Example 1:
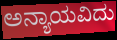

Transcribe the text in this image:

ಅನ್ಯಾಯವಿದು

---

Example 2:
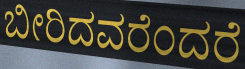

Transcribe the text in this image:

ಬೀರಿದವರೆಂದರೆ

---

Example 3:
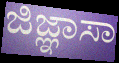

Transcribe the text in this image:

ಜಿಜ್ಞಾಸಾ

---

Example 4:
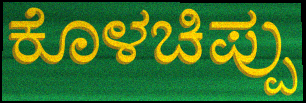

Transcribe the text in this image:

ಕೊಳಚಿಪ್ಪು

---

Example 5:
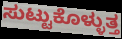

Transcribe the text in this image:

ಸುಟ್ಟುಕೊಳ್ಳುತ್ತ